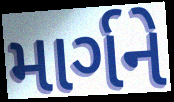
માર્ગને